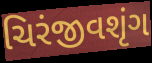
ચિરંજીવશૃંગ